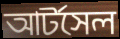
আর্টসেল